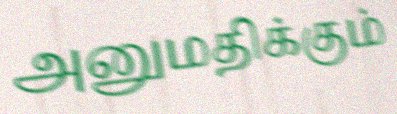
அனுமதிக்கும்